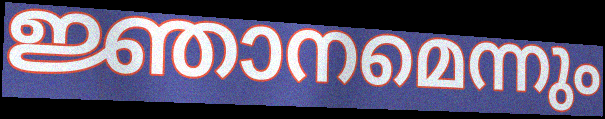
ജ്ഞാനമെന്നും